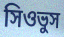
সিওভুস